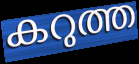
കറുത്ത